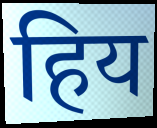
हिय